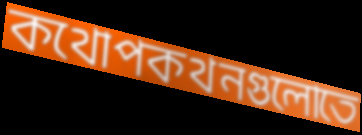
কথোপকথনগুলোতে